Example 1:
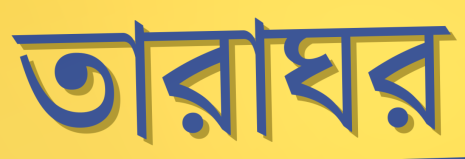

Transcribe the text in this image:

তারাঘর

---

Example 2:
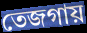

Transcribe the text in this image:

তেজগায়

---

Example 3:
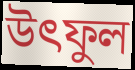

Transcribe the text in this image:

উৎফুল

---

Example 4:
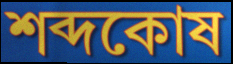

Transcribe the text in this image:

শব্দকোষ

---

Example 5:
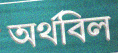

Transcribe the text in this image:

অর্থবিল